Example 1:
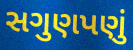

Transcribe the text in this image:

સગુણપણું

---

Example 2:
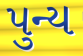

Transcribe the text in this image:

પુન્ય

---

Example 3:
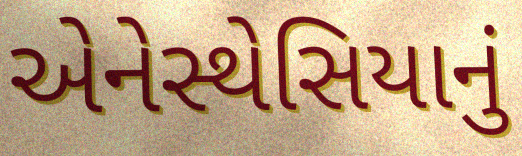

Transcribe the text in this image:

એનેસ્થેસિયાનું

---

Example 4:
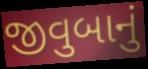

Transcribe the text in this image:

જીવુબાનું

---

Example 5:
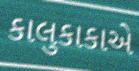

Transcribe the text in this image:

કાલુકાકાએ